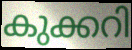
കുക്കറി